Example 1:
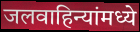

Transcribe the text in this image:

जलवाहिन्यांमध्ये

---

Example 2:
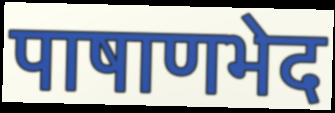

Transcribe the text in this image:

पाषाणभेद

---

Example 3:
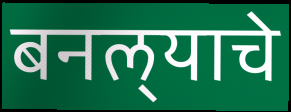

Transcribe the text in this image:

बनल्याचे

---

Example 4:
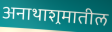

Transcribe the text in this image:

अनाथाश्रमातील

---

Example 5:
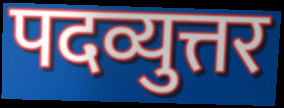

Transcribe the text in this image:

पदव्युत्तर